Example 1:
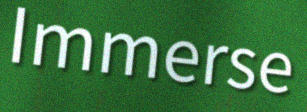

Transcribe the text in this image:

Immerse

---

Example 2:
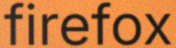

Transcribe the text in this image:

firefox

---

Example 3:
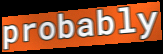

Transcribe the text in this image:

probably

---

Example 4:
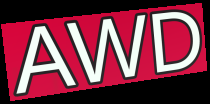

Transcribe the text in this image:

AWD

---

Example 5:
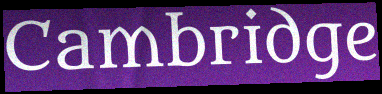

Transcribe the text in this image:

Cambridge